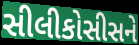
સીલીકોસીસને